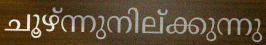
ചൂഴ്ന്നുനില്ക്കുന്നു